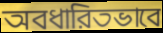
অবধারিতভাবে